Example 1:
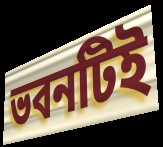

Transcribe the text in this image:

ভবনটিই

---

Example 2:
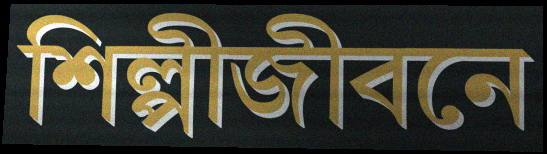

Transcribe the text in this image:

শিল্পীজীবনে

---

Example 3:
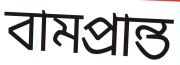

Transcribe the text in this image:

বামপ্রান্ত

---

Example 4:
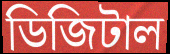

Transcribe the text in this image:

ডিজিটাল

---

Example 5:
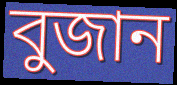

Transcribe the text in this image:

বুজান